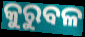
କୁରୁବଳ